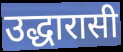
उद्धारासी